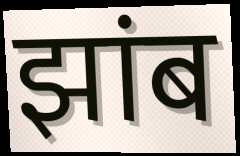
झांब